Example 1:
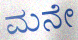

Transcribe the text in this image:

ಮನೇ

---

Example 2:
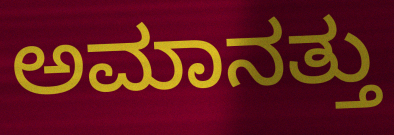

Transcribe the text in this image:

ಅಮಾನತ್ತು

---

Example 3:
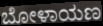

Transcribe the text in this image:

ಬೋಳಾಯಣ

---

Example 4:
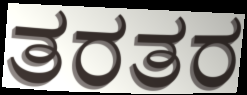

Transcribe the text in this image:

ತರತರ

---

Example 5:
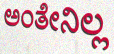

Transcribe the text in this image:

ಅಂತೇನಿಲ್ಲ